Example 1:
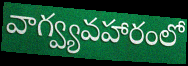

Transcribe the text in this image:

వాగ్వ్యవహారంలో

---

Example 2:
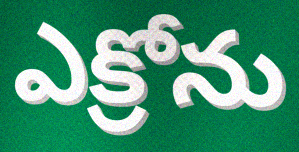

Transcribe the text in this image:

ఎక్రోను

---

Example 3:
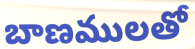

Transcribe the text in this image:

బాణములతో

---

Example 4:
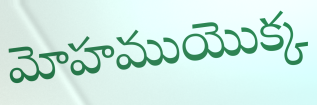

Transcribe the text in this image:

మోహముయొక్క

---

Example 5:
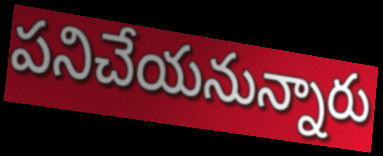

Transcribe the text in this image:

పనిచేయనున్నారు